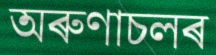
অৰুণাচলৰ